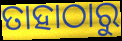
ତାହାଠାରୁ